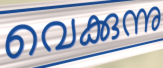
വെക്കുന്നു